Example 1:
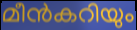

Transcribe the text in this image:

മീൻകറിയും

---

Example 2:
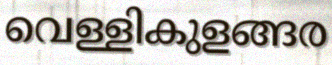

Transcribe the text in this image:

വെള്ളികുളങ്ങര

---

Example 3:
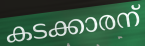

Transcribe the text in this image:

കടക്കാരന്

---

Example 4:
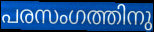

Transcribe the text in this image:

പരസംഗത്തിനു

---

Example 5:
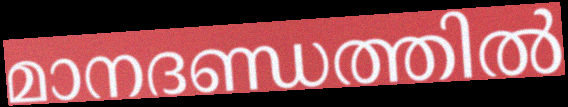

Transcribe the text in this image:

മാനദണ്ഡത്തിൽ